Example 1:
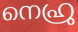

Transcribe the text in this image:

നെഹ്രു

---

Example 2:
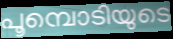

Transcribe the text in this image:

പൂമ്പൊടിയുടെ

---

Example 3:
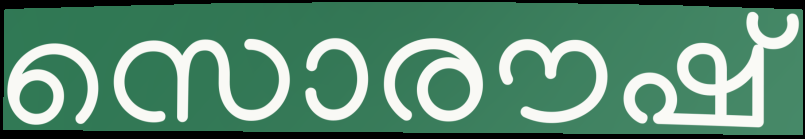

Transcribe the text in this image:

സൊരൗഷ്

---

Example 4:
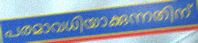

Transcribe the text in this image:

പരമാവധിയാക്കുന്നതിന്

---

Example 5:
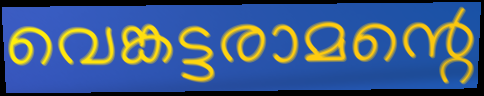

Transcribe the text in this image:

വെങ്കട്ടരാമന്റെ